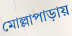
মোল্লাপাড়ায়